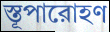
স্তূপারোহণ